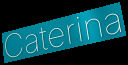
Caterina